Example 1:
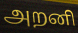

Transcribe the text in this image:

அறனி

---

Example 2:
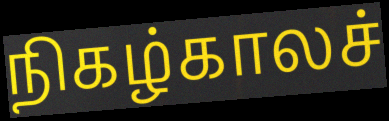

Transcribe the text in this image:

நிகழ்காலச்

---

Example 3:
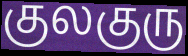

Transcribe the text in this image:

குலகுரு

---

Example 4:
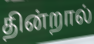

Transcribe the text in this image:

தின்றால்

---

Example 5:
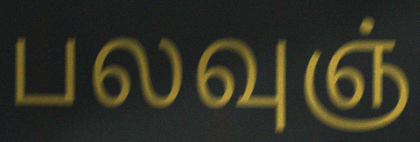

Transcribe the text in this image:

பலவுஞ்